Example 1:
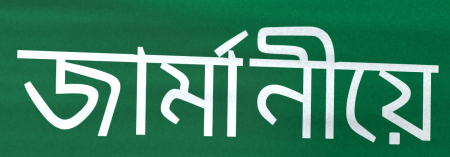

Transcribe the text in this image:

জাৰ্মানীয়ে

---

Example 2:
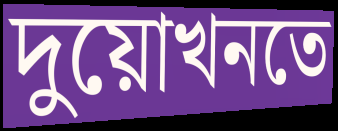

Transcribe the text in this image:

দুয়োখনতে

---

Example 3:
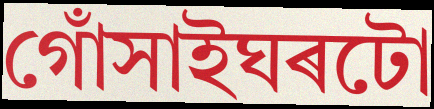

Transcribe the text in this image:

গোঁসাইঘৰটো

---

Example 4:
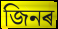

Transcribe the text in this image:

জিনৰ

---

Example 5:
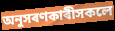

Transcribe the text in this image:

অনুসৰণকাৰীসকলে